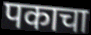
पकाचा